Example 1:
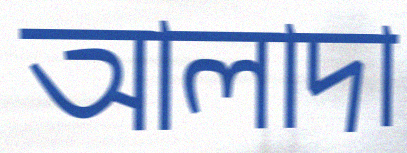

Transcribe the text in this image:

আলাদা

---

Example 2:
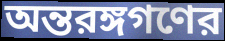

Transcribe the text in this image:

অন্তরঙ্গগণের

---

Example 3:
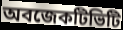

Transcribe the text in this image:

অবজেকটিভিটি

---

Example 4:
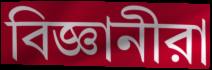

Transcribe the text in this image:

বিজ্ঞানীরা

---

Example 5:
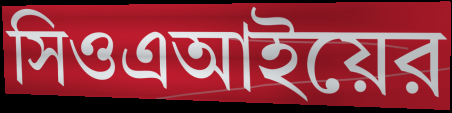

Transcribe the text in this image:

সিওএআইয়ের